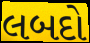
લબદો